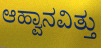
ಆಹ್ವಾನವಿತ್ತು